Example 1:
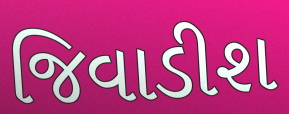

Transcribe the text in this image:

જિવાડીશ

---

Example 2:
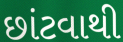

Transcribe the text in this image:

છાંટવાથી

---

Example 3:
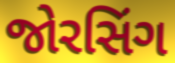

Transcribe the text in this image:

જોરસિંગ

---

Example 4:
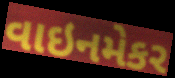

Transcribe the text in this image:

વાઇનમેકર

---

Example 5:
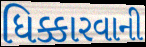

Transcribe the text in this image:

ધિક્કારવાની